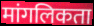
मांगलिकता